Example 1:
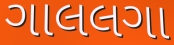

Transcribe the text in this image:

ગાલલગા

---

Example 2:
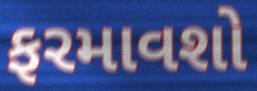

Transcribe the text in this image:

ફરમાવશો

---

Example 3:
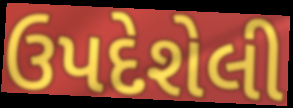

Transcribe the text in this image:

ઉપદેશેલી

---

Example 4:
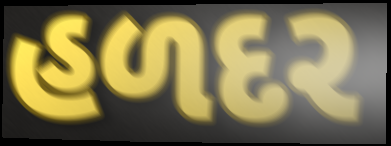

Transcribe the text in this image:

હળદર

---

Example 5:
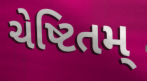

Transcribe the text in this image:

ચેષ્ટિતમ્